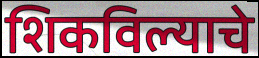
शिकविल्याचे